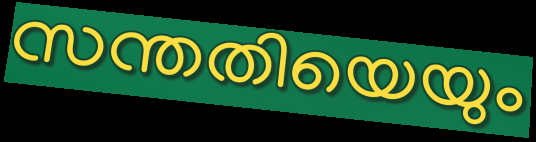
സന്തതിയെയും